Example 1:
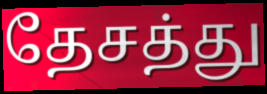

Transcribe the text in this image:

தேசத்து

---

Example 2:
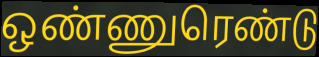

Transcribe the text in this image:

ஒண்ணுரெண்டு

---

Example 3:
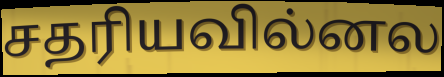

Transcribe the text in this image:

சதரியவில்னல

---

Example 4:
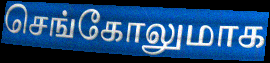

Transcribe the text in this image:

செங்கோலுமாக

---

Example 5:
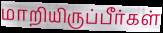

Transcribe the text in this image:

மாறியிருப்பீர்கள்